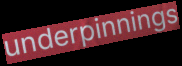
underpinnings